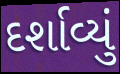
દર્શાવ્યું